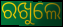
ରଖୁଲେ